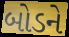
બોડને